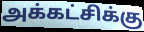
அக்கட்சிக்கு